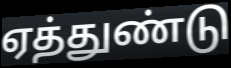
ஏத்துண்டு